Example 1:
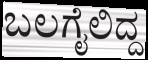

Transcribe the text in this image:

ಬಲಗೈಲಿದ್ದ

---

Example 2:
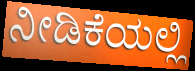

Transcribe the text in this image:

ನೀಡಿಕೆಯಲ್ಲಿ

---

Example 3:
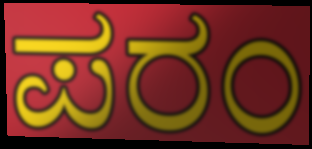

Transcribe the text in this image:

ಪರಂ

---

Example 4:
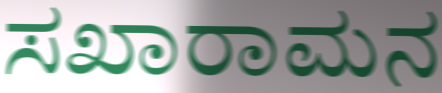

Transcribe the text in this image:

ಸಖಾರಾಮನ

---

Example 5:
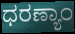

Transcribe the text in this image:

ಧರಣ್ಯಾಂ